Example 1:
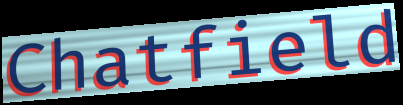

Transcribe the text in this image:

Chatfield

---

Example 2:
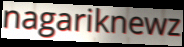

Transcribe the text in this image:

nagariknewz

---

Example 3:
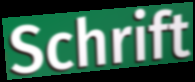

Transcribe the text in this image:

Schrift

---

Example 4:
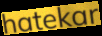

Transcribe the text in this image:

hatekar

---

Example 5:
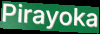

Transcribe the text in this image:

Pirayoka